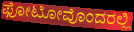
ಫೋಟೋವೊಂದರಲ್ಲಿ